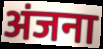
अंजना